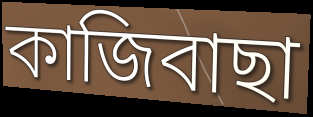
কাজিবাছা